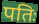
पतिः